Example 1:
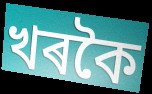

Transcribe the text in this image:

খৰকৈ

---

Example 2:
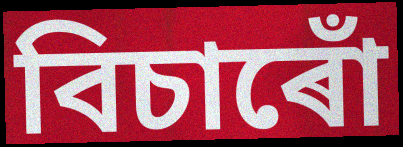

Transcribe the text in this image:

বিচাৰোঁ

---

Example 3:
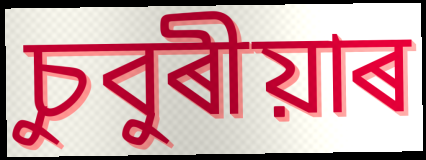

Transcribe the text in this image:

চুবুৰীয়াৰ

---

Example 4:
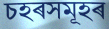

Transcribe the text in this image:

চহৰসমূহৰ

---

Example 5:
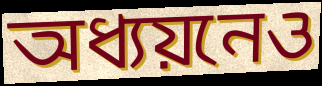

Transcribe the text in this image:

অধ্যয়নেও